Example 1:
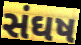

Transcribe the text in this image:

સંઘષ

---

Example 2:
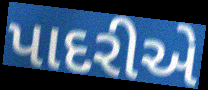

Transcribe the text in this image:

પાદરીએ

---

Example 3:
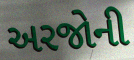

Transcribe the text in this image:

અરજોની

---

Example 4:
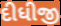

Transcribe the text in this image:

દીધીજી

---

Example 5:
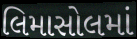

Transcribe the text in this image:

લિમાસોલમાં